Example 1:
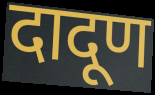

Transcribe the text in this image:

दादूण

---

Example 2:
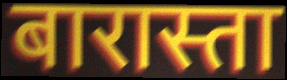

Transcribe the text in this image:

बारास्ता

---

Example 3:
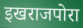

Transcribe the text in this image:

इखराजपोरा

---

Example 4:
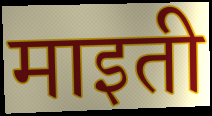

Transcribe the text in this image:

माइती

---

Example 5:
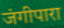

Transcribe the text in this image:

जंगीपारा